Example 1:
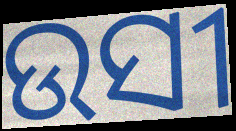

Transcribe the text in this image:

ଉସୀ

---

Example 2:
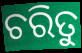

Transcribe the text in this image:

ଚରିତୁ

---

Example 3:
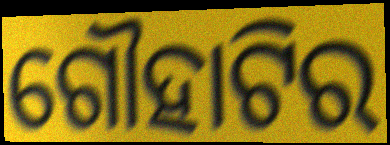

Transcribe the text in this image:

ଗୌହାଟିର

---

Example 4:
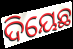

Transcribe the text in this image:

ଦିୟେଛ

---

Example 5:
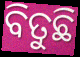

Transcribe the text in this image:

ବିତୁଛି